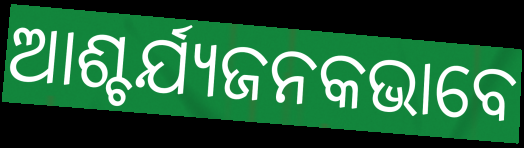
ଆଶ୍ଚର୍ଯ୍ୟଜନକଭାବେ